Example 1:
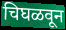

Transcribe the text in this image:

चिघळवून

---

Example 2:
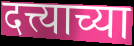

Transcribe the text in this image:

दत्त्याच्या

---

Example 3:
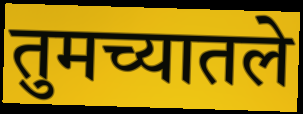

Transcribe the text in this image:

तुमच्यातले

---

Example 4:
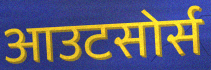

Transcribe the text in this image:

आउटसोर्स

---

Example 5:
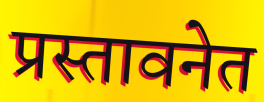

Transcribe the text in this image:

प्रस्तावनेत